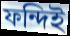
ফন্দিই